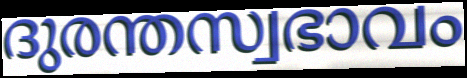
ദുരന്തസ്വഭാവം